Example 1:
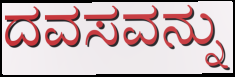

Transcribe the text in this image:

ದವಸವನ್ನು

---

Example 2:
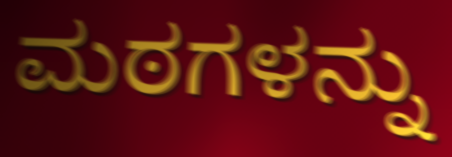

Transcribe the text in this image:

ಮಠಗಳನ್ನು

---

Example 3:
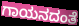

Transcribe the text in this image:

ಗಾಯನದಂತೆ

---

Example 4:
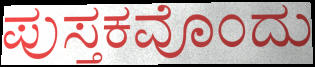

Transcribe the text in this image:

ಪುಸ್ತಕವೊಂದು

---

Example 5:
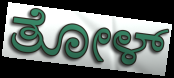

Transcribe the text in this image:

ತೋಳ್